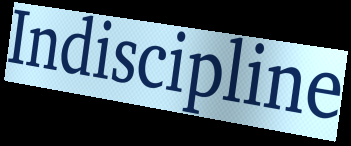
Indiscipline